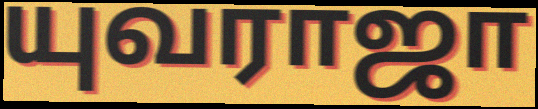
யுவராஜா